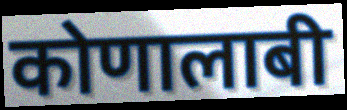
कोणालाबी